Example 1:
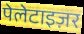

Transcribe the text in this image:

पेलेटाइज़र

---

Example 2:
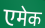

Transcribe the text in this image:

एमेक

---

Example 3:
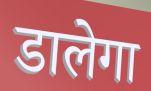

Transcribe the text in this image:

डालेगा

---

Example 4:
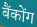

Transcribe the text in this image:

बैंकोंग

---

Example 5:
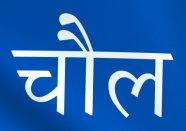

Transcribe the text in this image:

चौल